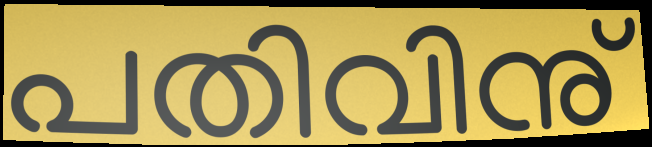
പതിവിനു്